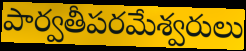
పార్వతీపరమేశ్వరులు